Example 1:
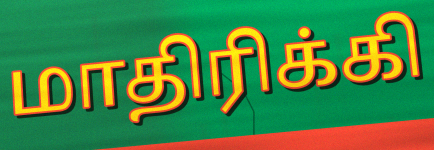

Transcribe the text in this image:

மாதிரிக்கி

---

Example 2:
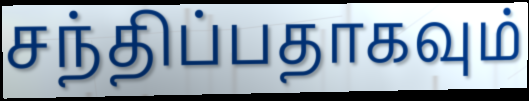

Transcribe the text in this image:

சந்திப்பதாகவும்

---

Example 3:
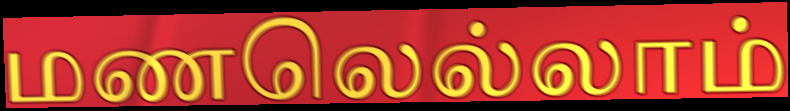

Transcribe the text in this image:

மணலெல்லாம்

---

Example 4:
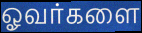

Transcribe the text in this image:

ஓவர்களை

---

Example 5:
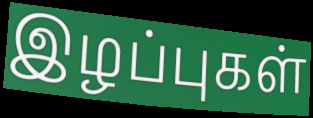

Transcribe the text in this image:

இழப்புகள்